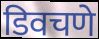
डिवचणे